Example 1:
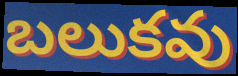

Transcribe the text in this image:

బలుకవు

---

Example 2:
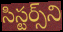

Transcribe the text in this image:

సిస్టర్స్‌ని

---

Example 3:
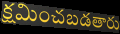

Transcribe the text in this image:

క్షమించబడతారు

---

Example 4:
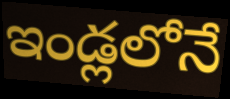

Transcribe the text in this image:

ఇండ్లలోనే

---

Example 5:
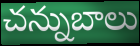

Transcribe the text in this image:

చన్నుబాలు